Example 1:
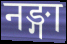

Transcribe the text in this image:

नङ्गा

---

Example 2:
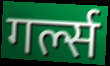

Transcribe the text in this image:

गर्ल्स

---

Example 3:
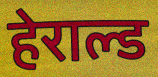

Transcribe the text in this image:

हेराल्ड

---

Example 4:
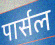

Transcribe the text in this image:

पार्सल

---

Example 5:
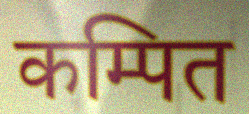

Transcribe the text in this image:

कम्पित